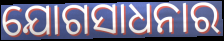
ଯୋଗସାଧନାର